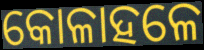
କୋଳାହଳେ